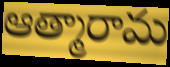
ఆత్మారామ